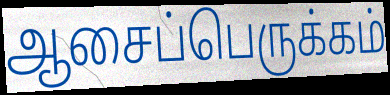
ஆசைப்பெருக்கம்